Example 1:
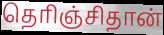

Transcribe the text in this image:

தெரிஞ்சிதான்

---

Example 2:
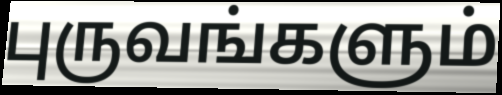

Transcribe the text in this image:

புருவங்களும்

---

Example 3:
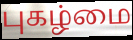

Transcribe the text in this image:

புகழ்மை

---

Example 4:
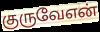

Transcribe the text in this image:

குருவேஎன்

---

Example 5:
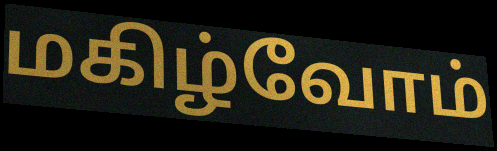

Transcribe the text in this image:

மகிழ்வோம்